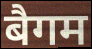
बैगम